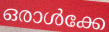
ഒരാൾക്കേ